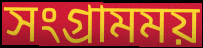
সংগ্রামময়